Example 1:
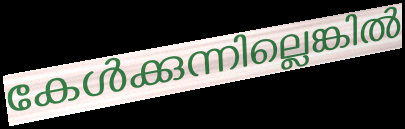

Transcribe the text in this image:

കേൾക്കുന്നില്ലെങ്കിൽ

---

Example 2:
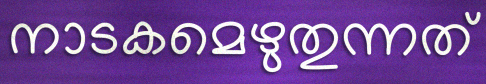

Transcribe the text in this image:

നാടകമെഴുതുന്നത്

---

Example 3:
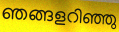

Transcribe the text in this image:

ഞങ്ങളറിഞ്ഞു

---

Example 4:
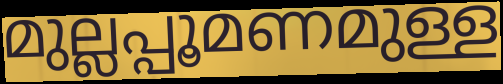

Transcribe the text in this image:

മുല്ലപ്പൂമണമുള്ള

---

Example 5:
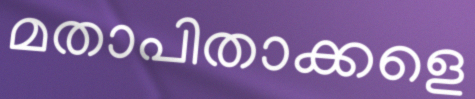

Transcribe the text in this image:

മതാപിതാക്കളെ